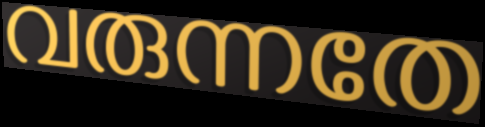
വരുന്നതേ